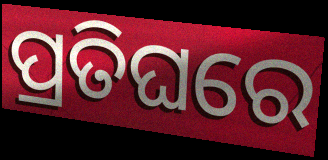
ପ୍ରତିଘରେ